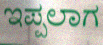
ಇಪ್ಪಲಾಗ